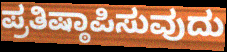
ಪ್ರತಿಷ್ಠಾಪಿಸುವುದು